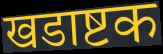
खडाष्टक